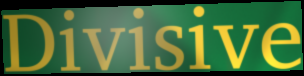
Divisive